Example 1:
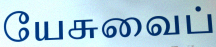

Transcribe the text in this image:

யேசுவைப்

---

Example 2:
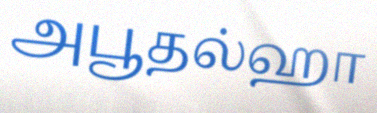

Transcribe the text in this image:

அபூதல்ஹா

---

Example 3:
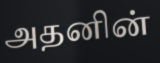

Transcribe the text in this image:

அதனின்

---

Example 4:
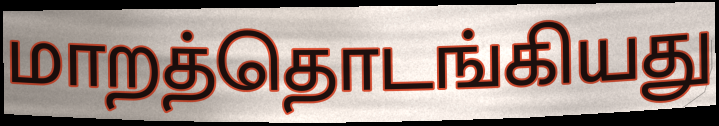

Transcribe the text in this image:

மாறத்தொடங்கியது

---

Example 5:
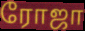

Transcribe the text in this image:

ரோஜா